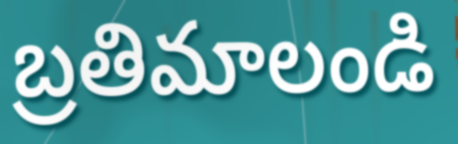
బ్రతిమాలండి